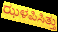
ಝಳಪಿಸಿತ್ತು